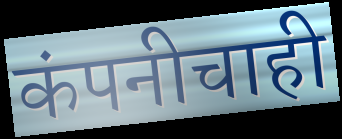
कंपनीचाही